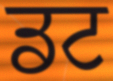
ਡਟ